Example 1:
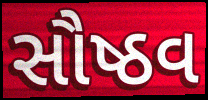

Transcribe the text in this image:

સૌષ્ઠવ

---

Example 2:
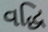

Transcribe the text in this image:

વદ્ધિ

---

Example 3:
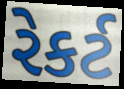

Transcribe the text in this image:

રેકર્ટ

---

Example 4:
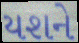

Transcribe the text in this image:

યશને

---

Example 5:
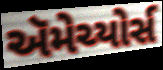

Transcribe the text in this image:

ઍમેચ્યોર્સ